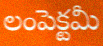
లంపెక్టమీ